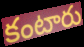
కంటారు